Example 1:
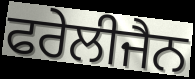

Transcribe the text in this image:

ਫਰੇਲੀਜੈਨ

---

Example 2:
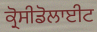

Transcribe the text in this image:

ਕ੍ਰੋਸੀਡੋਲਾਈਟ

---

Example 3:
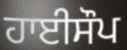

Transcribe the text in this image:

ਹਾਈਸੌਪ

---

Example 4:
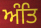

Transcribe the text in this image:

ਅੰਤਿ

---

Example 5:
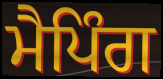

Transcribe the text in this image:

ਮੈਪਿੰਗ